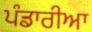
ਪੰਡਾਰੀਆ